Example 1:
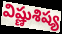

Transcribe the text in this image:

విష్ణుశిష్య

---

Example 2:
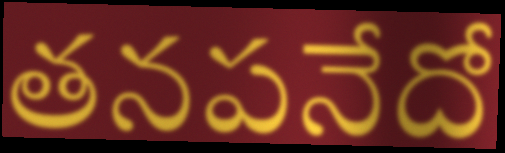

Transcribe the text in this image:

తనపనేదో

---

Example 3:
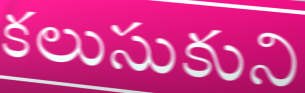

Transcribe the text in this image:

కలుసుకుని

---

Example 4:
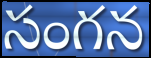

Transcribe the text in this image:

సంగన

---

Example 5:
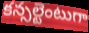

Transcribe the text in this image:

కన్సల్టెంటుగా